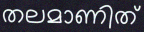
തലമാണിത്